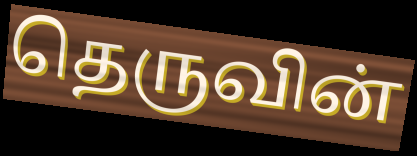
தெருவின்